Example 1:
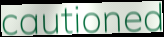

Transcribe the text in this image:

cautioned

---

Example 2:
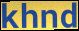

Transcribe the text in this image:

khnd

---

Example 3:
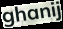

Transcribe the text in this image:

ghanij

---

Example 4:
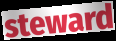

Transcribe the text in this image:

steward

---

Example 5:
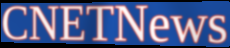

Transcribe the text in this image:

CNETNews